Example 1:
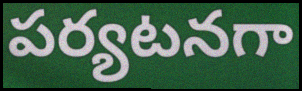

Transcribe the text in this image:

పర్యటనగా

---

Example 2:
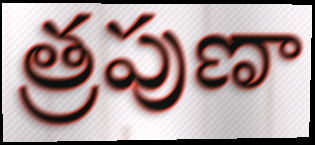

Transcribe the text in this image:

త్రపుణా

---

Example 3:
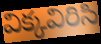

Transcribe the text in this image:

విక్కవిరిసి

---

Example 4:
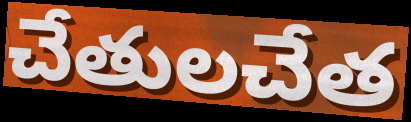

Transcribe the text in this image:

చేతులచేత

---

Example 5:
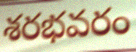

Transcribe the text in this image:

శరభవరం